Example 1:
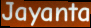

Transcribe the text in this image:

Jayanta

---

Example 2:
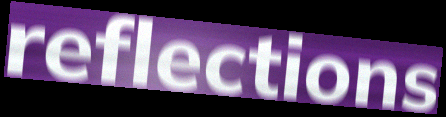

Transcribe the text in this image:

reflections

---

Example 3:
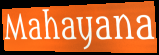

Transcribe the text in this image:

Mahayana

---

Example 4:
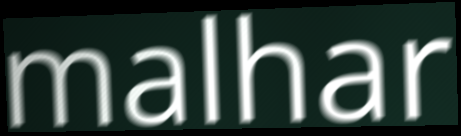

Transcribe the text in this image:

malhar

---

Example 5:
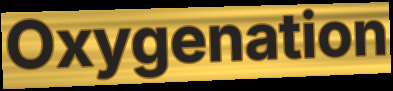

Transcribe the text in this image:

Oxygenation